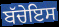
ਬੱਚੇਇਸ